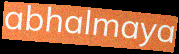
abhalmaya